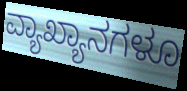
ವ್ಯಾಖ್ಯಾನಗಳೂ